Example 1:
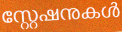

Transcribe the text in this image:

സ്റ്റേഷനുകൾ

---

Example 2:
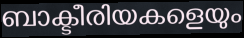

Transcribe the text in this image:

ബാക്ടീരിയകളെയും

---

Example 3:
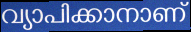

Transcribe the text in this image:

വ്യാപിക്കാനാണ്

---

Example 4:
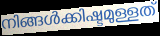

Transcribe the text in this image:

നിങ്ങൾക്കിഷ്ടമുള്ളത്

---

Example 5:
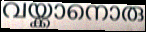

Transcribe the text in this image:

വയ്ക്കാനൊരു